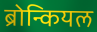
ब्रोन्कियल